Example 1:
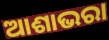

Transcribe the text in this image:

ଆଶାଭରା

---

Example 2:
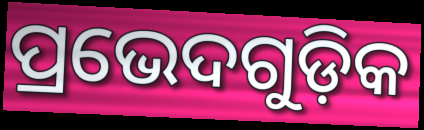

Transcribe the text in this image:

ପ୍ରଭେଦଗୁଡ଼ିକ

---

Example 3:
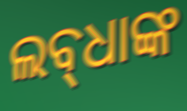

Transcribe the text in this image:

ଲବ୍‌ଧାଙ୍କ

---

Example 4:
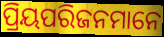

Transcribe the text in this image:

ପ୍ରିୟପରିଜନମାନେ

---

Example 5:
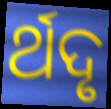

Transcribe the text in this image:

ର୍ଥଦୃ